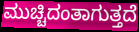
ಮುಚ್ಚಿದಂತಾಗುತ್ತದೆ